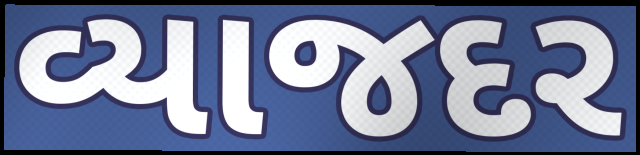
વ્યાજદર